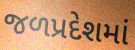
જળપ્રદેશમાં